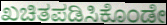
ಖಚಿತಪಡಿಸಿಕೊಂಡೇ